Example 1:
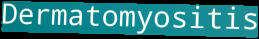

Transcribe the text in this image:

Dermatomyositis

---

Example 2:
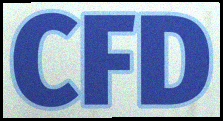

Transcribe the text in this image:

CFD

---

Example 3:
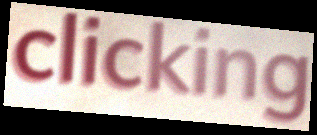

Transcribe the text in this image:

clicking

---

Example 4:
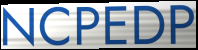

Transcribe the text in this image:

NCPEDP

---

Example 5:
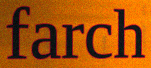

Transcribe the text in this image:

farch